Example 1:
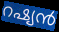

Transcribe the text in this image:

റഷ്യൻ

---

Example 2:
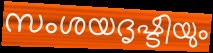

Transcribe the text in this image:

സംശയദൃഷ്ടിയും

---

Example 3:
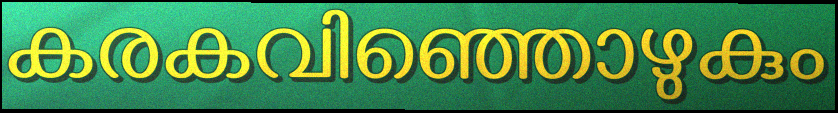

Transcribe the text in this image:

കരകവിഞ്ഞൊഴുകും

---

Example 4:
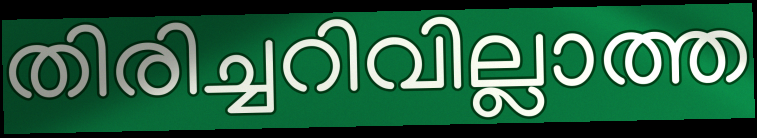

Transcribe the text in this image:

തിരിച്ചറിവില്ലാത്ത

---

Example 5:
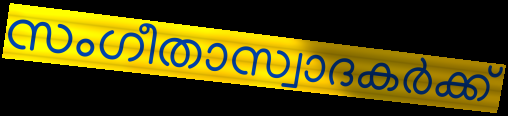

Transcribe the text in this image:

സംഗീതാസ്വാദകർക്ക്